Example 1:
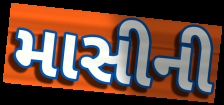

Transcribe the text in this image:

માસીની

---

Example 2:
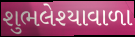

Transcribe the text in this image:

શુભલેશ્યાવાળા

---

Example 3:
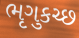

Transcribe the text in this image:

ભૃગુકચ્છ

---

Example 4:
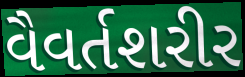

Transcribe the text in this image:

વૈવર્તશરીર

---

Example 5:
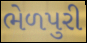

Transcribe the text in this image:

ભેળપુરી